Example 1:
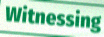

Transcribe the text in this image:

Witnessing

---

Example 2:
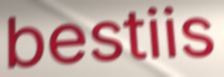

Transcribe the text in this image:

bestiis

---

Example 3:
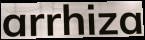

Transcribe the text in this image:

arrhiza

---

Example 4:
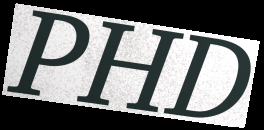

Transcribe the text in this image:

PHD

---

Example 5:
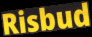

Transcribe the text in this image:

Risbud